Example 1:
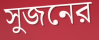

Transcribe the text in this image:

সুজনের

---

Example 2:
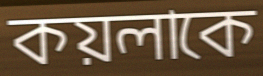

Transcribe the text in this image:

কয়লাকে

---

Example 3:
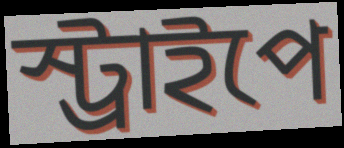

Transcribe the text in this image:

স্ট্রাইপে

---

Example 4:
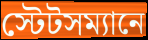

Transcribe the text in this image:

স্টেটসম্যানে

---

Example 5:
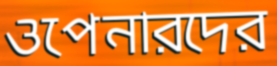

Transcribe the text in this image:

ওপেনারদের